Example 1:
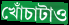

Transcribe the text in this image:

খোঁচাটাও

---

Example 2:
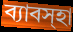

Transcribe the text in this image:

ব্যাবস্হা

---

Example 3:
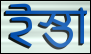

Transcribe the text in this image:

ইস্তা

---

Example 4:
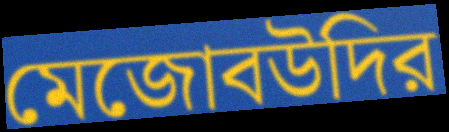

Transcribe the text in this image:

মেজোবউদির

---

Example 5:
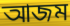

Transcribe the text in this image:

আজম